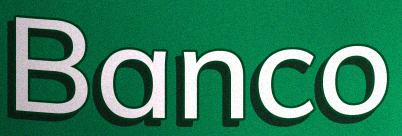
Banco